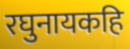
रघुनायकहि